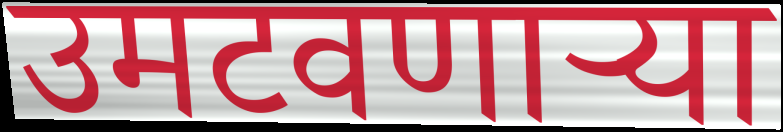
उमटवणार्‍या